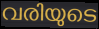
വരിയുടെ